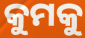
କୁମକୁ